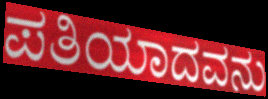
ಪತಿಯಾದವನು